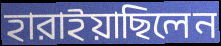
হারাইয়াছিলেন